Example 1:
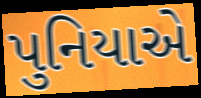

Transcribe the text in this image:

પુનિયાએ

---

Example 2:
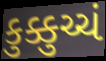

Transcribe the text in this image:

કુક્કુચ્ચં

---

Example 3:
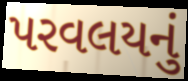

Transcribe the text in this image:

પરવલયનું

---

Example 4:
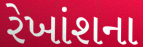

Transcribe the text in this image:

રેખાંશના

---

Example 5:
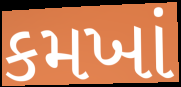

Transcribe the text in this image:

કમખાં